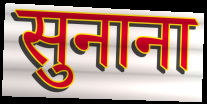
सुनाना